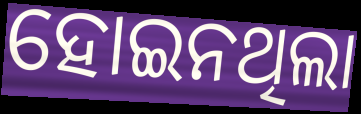
ହୋଇନଥିଲା